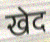
खेद